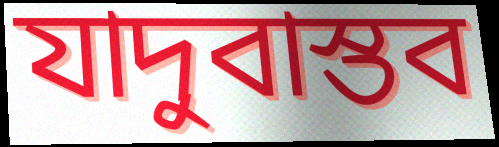
যাদুবাস্তব